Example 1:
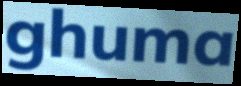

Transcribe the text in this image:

ghuma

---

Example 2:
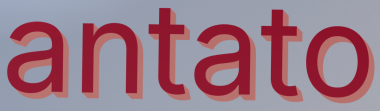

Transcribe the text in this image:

antato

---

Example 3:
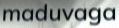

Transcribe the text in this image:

maduvaga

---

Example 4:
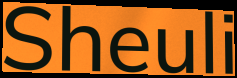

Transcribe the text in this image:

Sheuli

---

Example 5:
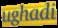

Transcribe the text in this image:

ughadi